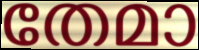
തേമാ